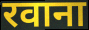
रवाना